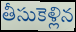
తీసుకెళ్లిన